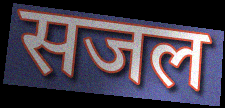
सजल